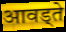
आवड्ते